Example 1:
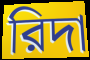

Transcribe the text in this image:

রিদা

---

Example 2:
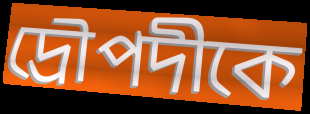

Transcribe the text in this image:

দ্রৌপদীকে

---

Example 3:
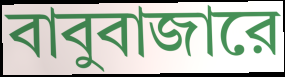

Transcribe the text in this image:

বাবুবাজারে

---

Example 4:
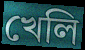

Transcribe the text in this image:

খেলি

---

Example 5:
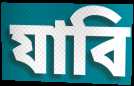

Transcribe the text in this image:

যাবি